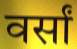
वर्सां